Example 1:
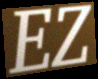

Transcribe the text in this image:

EZ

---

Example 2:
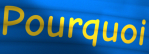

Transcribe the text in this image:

Pourquoi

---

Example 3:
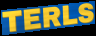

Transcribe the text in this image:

TERLS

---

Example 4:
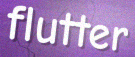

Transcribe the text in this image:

flutter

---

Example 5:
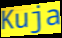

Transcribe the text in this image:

Kuja